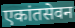
एकांतसेवन